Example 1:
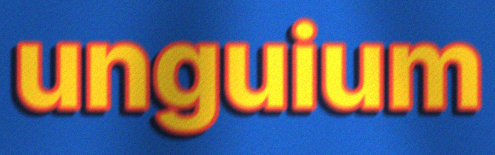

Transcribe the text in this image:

unguium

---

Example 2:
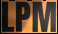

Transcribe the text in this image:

LPM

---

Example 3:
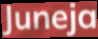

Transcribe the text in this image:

Juneja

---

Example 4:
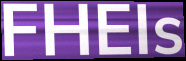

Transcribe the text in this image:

FHEIs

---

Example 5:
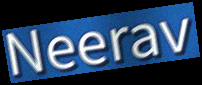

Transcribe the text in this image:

Neerav